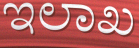
ಇಲಾಖ